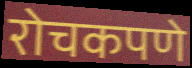
रोचकपणे